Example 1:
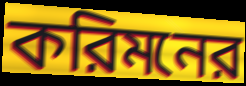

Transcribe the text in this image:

করিমনের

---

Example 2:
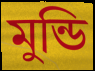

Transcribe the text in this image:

মুন্ডি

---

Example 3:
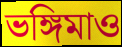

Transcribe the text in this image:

ভঙ্গিমাও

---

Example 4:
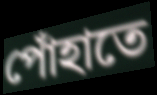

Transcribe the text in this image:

পোঁহাতে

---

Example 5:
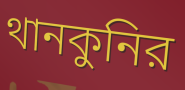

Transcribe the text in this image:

থানকুনির